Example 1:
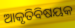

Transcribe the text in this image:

ଆକୃତିବିଷୟକ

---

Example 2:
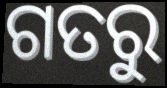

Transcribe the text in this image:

ଗତରୁ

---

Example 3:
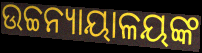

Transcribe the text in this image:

ଉଚ୍ଚନ୍ୟାୟାଳୟଙ୍କ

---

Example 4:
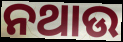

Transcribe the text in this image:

ନଥାଉ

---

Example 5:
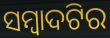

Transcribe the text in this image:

ସମ୍ବାଦଟିର